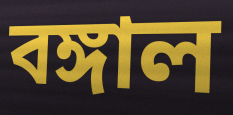
বঙ্গাল